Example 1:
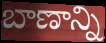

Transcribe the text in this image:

బాణాన్ని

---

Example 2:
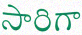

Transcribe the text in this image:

సారిగా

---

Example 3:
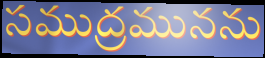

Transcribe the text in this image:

సముద్రమునను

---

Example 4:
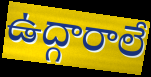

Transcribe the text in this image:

ఉద్గారాలే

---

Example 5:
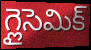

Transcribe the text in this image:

గ్లైసెమిక్